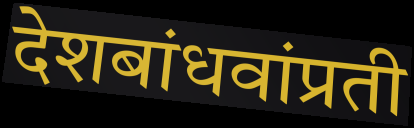
देशबांधवांप्रती